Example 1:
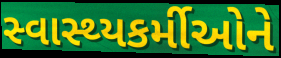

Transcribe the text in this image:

સ્વાસ્થ્યકર્મીઓને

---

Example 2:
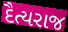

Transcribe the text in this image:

દૈત્યરાજ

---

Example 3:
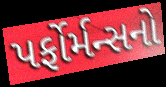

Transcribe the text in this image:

પર્ફોર્મન્સનો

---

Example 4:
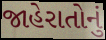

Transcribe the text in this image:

જાહેરાતોનું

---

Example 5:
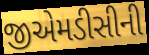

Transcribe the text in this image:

જીએમડીસીની